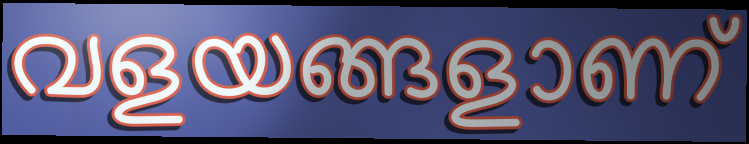
വളയങ്ങളാണ്